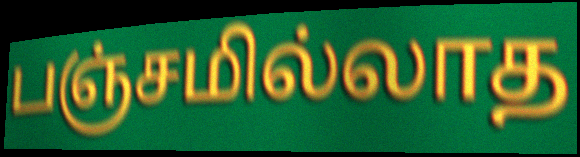
பஞ்சமில்லாத